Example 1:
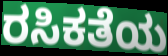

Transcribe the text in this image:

ರಸಿಕತೆಯ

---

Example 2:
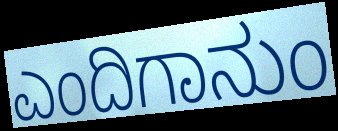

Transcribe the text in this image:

ಎಂದಿಗಾನುಂ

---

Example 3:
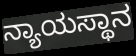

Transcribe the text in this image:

ನ್ಯಾಯಸ್ಥಾನ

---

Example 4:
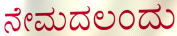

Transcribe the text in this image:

ನೇಮದಲಂದು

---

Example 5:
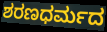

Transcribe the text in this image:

ಶರಣಧರ್ಮದ